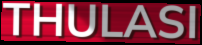
THULASI